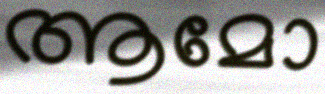
ആമോ